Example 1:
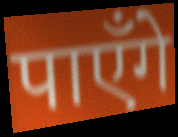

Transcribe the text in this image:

पाएँगे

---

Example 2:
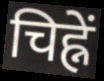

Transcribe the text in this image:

चिह्नें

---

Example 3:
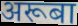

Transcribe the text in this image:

अरूबा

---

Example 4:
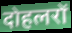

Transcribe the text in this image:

दोहलरों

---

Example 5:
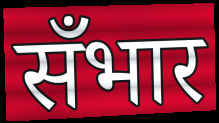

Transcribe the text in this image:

सँभार